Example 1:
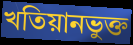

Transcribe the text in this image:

খতিয়ানভুক্ত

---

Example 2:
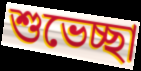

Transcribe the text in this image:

শুভেচ্ছা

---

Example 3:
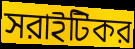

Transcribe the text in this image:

সরাইটিকর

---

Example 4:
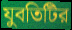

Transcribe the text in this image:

যুবতিটির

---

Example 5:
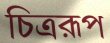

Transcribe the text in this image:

চিত্ররূপ